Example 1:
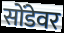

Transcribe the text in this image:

सोंडेवर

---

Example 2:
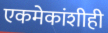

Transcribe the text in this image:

एकमेकांशीही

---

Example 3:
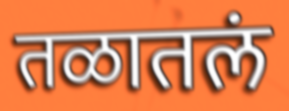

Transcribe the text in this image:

तळातलं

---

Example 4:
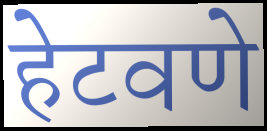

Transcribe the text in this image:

हेटवणे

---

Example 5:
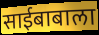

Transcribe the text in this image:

साईबाबाला